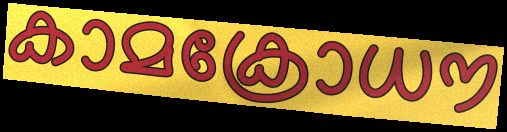
കാമക്രോധൗ